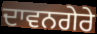
ਦਾਵਨਗੇਰੇ